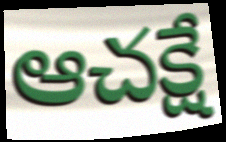
ఆచక్షే